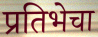
प्रतिभेचा